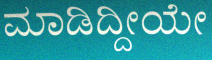
ಮಾಡಿದ್ದೀಯೇ